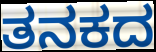
ತನಕದ